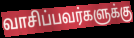
வாசிப்பவர்களுக்கு